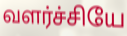
வளர்ச்சியே